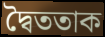
দ্বৈততাক